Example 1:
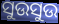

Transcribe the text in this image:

ସୁଉସୁଉ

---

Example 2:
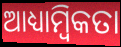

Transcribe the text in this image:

ଆଧ୍ୟାମ୍ବିକତା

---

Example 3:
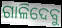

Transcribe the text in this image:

ଗାଳିଦେବୁ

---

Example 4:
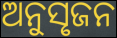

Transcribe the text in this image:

ଅନୁସୃଜନ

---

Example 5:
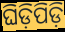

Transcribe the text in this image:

ଘିଡ଼ିପିଡ଼ି